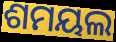
ଶମୟଲ